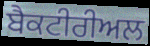
ਬੈਕਟੀਰੀਅਲ